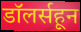
डॉलर्सहून